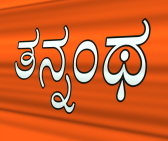
ತನ್ನಂಥ